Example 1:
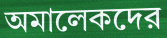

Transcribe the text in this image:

অমালেকদের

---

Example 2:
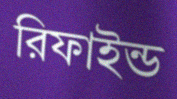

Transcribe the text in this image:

রিফাইন্ড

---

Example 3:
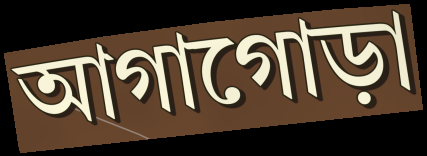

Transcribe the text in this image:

আগাগোড়া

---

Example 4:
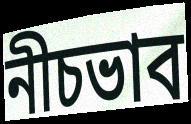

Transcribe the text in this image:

নীচভাব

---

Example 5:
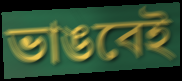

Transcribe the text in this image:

ভাঙবেই